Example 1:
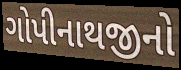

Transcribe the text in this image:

ગોપીનાથજીનો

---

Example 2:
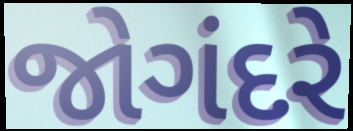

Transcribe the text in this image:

જોગંદરે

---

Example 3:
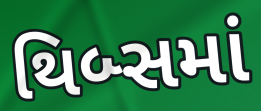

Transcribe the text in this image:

થિબ્સમાં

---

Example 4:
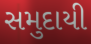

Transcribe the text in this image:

સમુદાયી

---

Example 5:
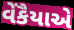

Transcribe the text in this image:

વેંકૈયાએ